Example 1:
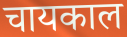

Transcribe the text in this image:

चायकाल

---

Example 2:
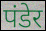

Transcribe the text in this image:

पंडेर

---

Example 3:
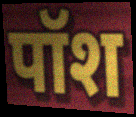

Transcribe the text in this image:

पॉश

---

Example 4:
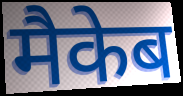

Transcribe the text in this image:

मैकेब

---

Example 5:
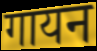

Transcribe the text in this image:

गायन